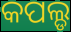
କପଲ୍ଡ